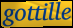
gottille